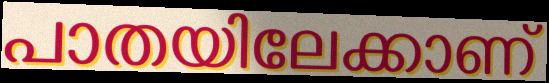
പാതയിലേക്കാണ്